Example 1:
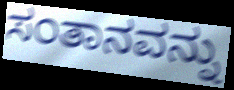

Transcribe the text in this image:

ಸಂತಾನವನ್ನು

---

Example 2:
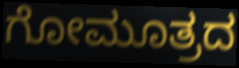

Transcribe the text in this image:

ಗೋಮೂತ್ರದ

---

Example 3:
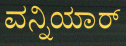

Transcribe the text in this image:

ವನ್ನಿಯಾರ್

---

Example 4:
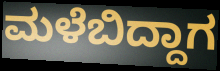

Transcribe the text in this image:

ಮಳೆಬಿದ್ದಾಗ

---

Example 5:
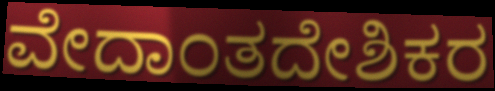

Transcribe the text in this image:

ವೇದಾಂತದೇಶಿಕರ